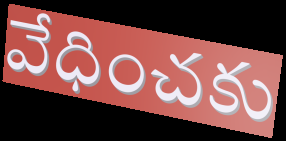
వేధించకు